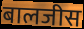
बालजीस